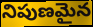
నిపుణమైన